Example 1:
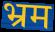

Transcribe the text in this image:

भ्रम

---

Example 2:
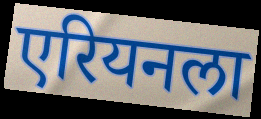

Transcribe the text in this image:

एरियनला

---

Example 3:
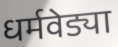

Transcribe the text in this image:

धर्मवेड्या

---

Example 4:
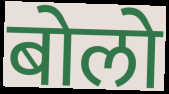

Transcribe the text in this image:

बोलो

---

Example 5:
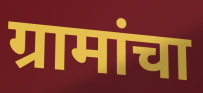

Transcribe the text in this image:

ग्रामांचा